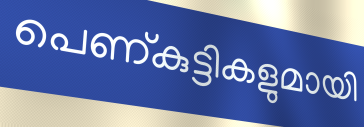
പെണ്കുട്ടികളുമായി